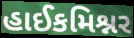
હાઈકમિશ્નર